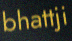
bhattji